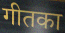
गीतका